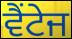
ਵੈਂਟੇਜ